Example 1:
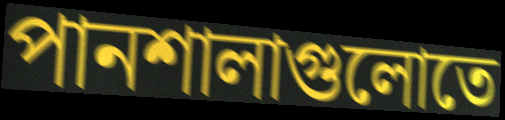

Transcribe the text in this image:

পানশালাগুলোতে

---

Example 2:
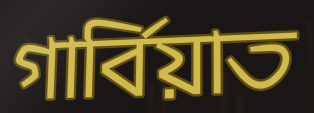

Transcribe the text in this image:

গার্বিয়াত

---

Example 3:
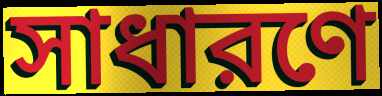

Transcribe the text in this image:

সাধারণে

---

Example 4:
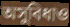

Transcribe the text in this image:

অসুবিধাও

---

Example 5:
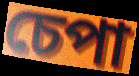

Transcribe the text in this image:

চেপা